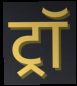
ट्रॉ